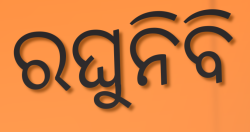
ରଘୁନିବି